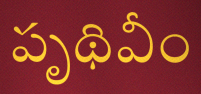
పృథివీం